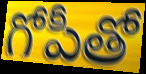
గోపీతో